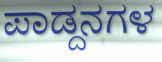
ಪಾಡ್ದನಗಳ